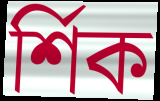
র্শিক